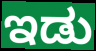
ಇಡು